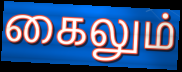
கைலும்